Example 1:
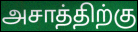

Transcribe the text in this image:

அசாத்திற்கு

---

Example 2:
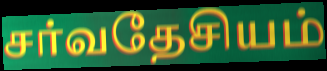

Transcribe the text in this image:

சர்வதேசியம்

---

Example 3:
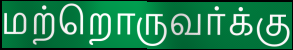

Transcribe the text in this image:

மற்றொருவர்க்கு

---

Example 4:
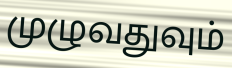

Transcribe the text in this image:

முழுவதுவும்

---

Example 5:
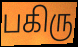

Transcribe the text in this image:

பகிரு